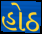
હોઠ